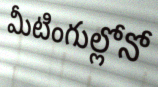
మీటింగుల్లోనో